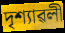
দৃশ্যাৱলী